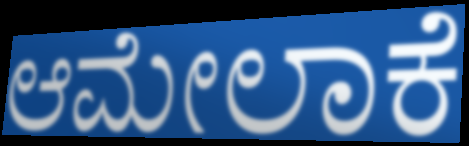
ಆಮೇಲಾಕೆ